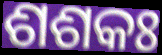
ଶଶକଃ